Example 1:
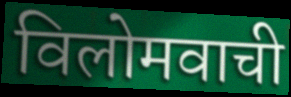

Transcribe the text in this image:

विलोमवाची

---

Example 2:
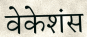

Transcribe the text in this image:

वेकेशंस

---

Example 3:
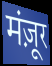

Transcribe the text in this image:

मंज़ूर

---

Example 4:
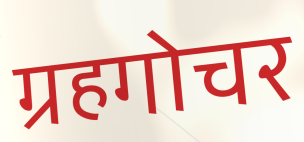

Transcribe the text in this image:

ग्रहगोचर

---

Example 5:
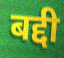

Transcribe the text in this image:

बद्दी